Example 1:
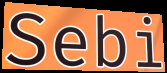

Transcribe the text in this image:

Sebi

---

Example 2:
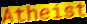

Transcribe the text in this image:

Atheist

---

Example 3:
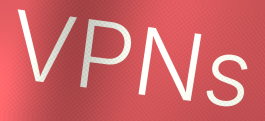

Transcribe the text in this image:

VPNs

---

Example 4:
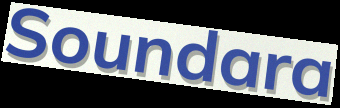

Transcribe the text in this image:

Soundara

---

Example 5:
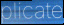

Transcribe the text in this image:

plicate